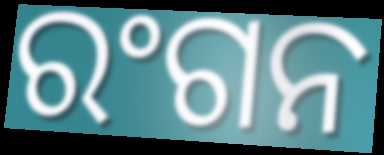
ରଂଗନ